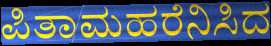
ಪಿತಾಮಹರೆನಿಸಿದ